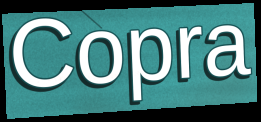
Copra